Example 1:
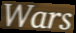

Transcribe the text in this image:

Wars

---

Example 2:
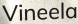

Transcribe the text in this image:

Vineela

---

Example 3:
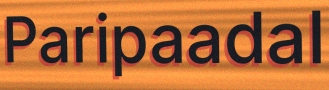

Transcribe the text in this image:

Paripaadal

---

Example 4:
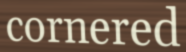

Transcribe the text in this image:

cornered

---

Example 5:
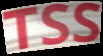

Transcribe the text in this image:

TSS